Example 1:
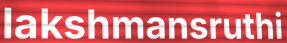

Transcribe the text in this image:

lakshmansruthi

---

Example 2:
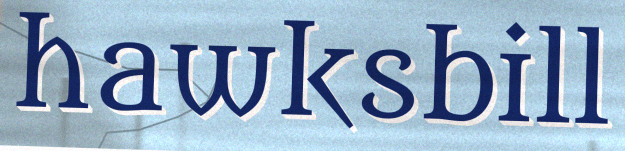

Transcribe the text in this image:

hawksbill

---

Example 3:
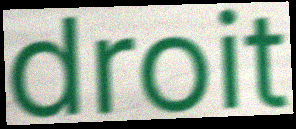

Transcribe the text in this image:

droit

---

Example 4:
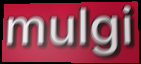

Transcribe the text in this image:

mulgi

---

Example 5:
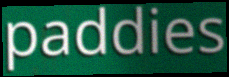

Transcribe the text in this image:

paddies